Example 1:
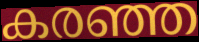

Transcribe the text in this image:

കരഞ്ഞ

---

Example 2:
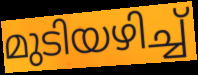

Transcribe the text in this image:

മുടിയഴിച്ച്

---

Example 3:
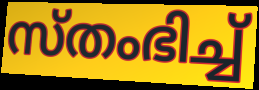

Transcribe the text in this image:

സ്തംഭിച്ച്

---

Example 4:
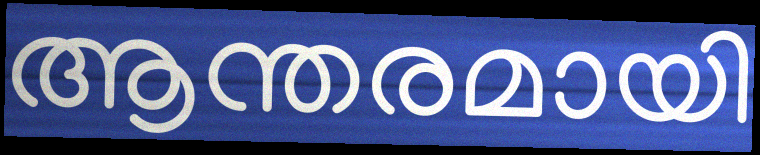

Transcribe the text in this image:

ആന്തരമായി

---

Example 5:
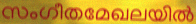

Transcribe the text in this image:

സംഗീതമേഖലയിൽ